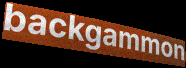
backgammon